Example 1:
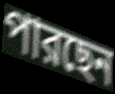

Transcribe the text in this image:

পারছেন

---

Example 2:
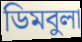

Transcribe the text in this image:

ডিমবুলা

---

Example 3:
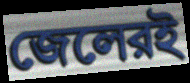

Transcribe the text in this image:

জেলেরই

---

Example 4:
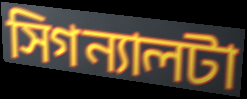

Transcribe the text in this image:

সিগন্যালটা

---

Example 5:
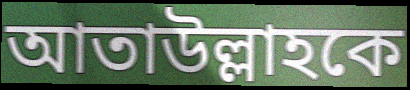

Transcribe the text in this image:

আতাউল্লাহকে